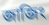
জাজিং